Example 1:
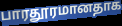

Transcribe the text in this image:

பாரதூரமானதாக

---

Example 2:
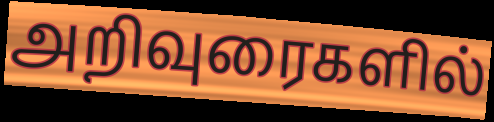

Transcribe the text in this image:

அறிவுரைகளில்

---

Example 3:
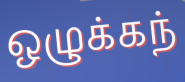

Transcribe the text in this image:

ஒழுக்கந்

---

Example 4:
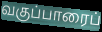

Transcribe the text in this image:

வகுப்பாரைப்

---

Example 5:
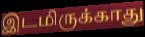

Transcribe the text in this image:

இடமிருக்காது